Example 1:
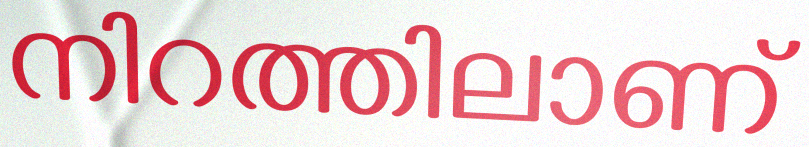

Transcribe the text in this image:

നിറത്തിലാണ്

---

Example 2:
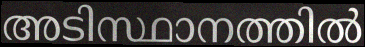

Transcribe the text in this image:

അടിസ്ഥാനത്തിൽ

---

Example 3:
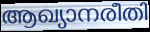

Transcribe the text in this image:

ആഖ്യാനരീതി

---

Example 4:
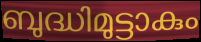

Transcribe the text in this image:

ബുദ്ധിമുട്ടാകും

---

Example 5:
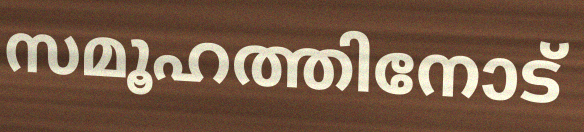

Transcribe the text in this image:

സമൂഹത്തിനോട്